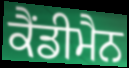
ਕੈਂਡੀਮੈਨ